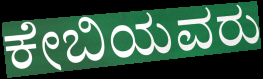
ಕೇಬಿಯವರು